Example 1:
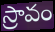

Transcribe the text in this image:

స్రావం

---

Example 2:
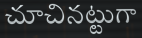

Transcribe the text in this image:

చూచినట్టుగా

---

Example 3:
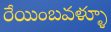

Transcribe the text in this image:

రేయింబవళ్ళూ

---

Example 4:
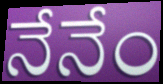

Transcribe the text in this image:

నేనేం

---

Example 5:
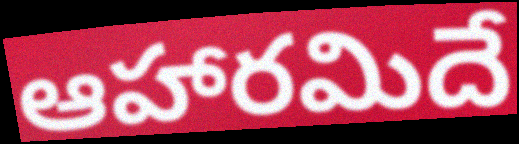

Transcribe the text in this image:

ఆహారమిదే